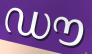
ഡൗ